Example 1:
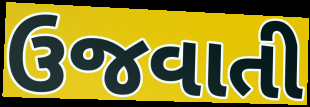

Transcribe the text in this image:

ઉજવાતી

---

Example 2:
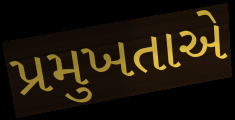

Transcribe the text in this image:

પ્રમુખતાએ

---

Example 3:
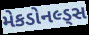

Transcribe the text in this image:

મેકડોનલ્ડ્સ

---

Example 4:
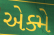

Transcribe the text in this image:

એક્મે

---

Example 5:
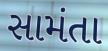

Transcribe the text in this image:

સામંતા